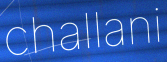
challani